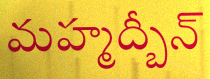
మహ్మద్బీన్